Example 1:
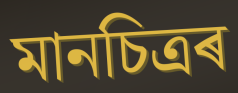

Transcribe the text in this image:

মানচিত্ৰৰ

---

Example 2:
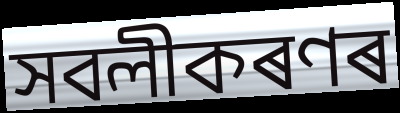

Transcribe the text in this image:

সবলীকৰণৰ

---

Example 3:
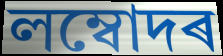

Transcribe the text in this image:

লম্বোদৰ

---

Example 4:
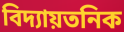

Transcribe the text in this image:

বিদ্যায়তনিক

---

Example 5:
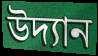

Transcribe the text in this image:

উদ্যান